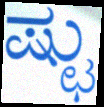
ಷ್ಟು